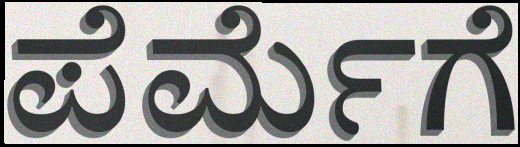
ಪೆರ್ಮೆಗೆ